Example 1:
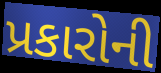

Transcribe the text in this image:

પ્રકારોની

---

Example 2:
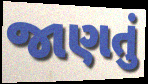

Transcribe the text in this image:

જાણતું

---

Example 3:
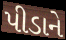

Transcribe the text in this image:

પીડાને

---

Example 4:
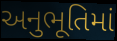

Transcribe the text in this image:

અનુભૂતિમાં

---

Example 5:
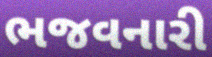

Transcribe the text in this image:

ભજવનારી